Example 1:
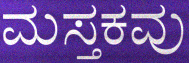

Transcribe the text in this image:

ಮಸ್ತಕವು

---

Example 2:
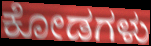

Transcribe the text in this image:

ಕೋಡಗಳು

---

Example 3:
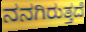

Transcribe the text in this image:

ನನಗಿರುತ್ತದೆ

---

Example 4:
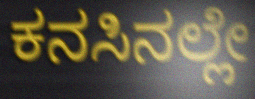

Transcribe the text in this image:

ಕನಸಿನಲ್ಲೇ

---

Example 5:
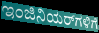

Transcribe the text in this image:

ಇಂಜಿನಿಯರ್‌ಗಳಿಗೆ